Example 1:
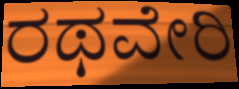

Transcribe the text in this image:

ರಥವೇರಿ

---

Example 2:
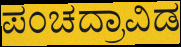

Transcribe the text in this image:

ಪಂಚದ್ರಾವಿಡ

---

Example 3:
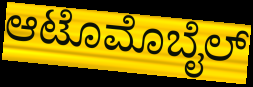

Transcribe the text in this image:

ಆಟೊಮೊಬೈಲ್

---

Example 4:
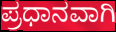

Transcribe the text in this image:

ಪ್ರಧಾನವಾಗಿ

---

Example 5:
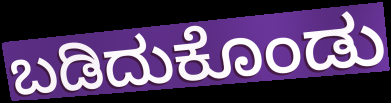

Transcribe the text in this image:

ಬಡಿದುಕೊಂಡು